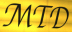
MTD